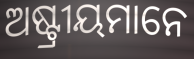
ଅଷ୍ଟ୍ରୀୟମାନେ